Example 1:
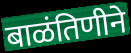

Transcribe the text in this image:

बाळंतिणीने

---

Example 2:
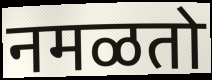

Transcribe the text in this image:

नमळतो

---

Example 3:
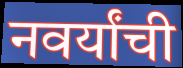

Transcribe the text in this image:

नवर्यांची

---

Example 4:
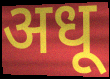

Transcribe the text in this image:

अधू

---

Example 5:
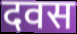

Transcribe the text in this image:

दवस